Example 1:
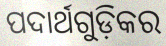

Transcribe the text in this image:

ପଦାର୍ଥଗୁଡ଼ିକର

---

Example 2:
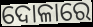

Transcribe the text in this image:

ଦୋଳାରେ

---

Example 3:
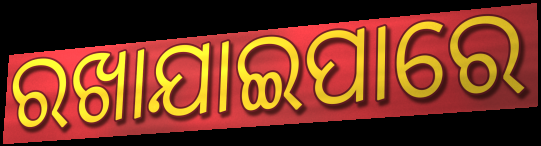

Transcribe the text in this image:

ରଖାଯାଇପାରେ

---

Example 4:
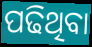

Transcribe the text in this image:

ପଢିଥିବା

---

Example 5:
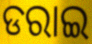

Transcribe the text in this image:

ଡରାଇ